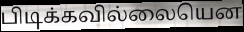
பிடிக்கவில்லையென